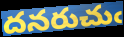
దనరుచుఁ